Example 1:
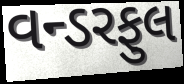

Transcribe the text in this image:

વન્ડરફુલ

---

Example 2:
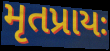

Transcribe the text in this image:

મૃતપ્રાયઃ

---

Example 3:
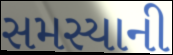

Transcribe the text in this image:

સમસ્યાની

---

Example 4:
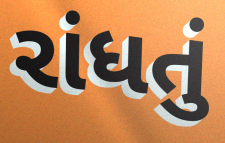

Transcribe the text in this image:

રાંધતું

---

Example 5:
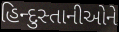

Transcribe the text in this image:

હિન્દુસ્તાનીઓને